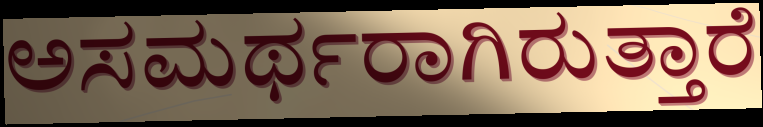
ಅಸಮರ್ಥರಾಗಿರುತ್ತಾರೆ